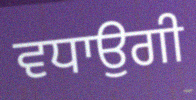
ਵਧਾਉਗੀ